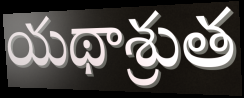
యథాశ్రుత